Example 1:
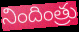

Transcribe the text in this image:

నిందింత్రు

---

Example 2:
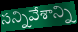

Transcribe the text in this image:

సన్నివేశాన్ని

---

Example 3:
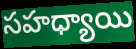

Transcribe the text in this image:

సహధ్యాయి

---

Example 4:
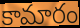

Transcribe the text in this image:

కామారం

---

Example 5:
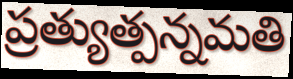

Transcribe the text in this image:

ప్రత్యుత్పన్నమతి